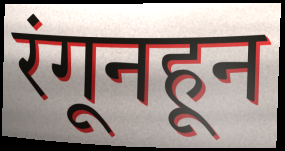
रंगूनहून